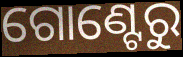
ଗୋଣ୍ଟେରୁ